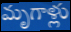
మృగాళ్లు